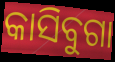
କାସିବୁଗା